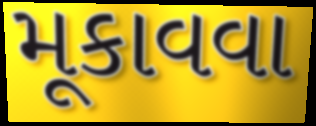
મૂકાવવા